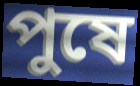
পুষে